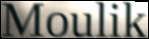
Moulik